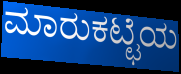
ಮಾರುಕಟ್ಟೆಯ